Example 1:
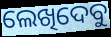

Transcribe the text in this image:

ଲେଖିଦେବୁ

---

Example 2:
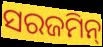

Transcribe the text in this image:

ସରଜମିନ୍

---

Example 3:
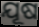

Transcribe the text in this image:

ଯୂଷ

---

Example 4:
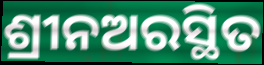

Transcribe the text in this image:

ଶ୍ରୀନଅରସ୍ଥିତ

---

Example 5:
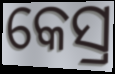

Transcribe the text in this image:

କେସ୍ର